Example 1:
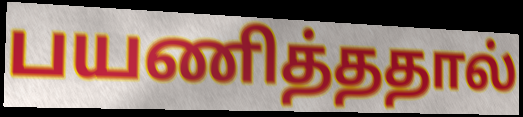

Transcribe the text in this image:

பயணித்ததால்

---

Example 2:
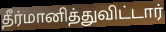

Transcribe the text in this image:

தீர்மானித்துவிட்டார்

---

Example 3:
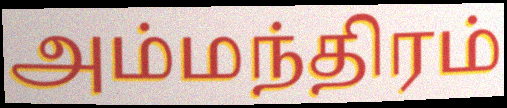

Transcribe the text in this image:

அம்மந்திரம்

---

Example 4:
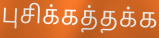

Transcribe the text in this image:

புசிக்கத்தக்க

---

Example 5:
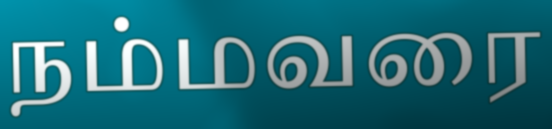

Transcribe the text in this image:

நம்மவரை